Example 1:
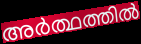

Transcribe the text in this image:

അർത്ഥത്തിൽ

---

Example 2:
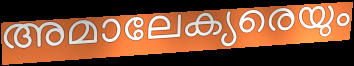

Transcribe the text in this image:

അമാലേക്യരെയും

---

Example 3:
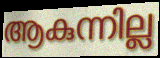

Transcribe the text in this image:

ആകുന്നില്ല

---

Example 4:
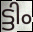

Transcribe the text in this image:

ട്ടിം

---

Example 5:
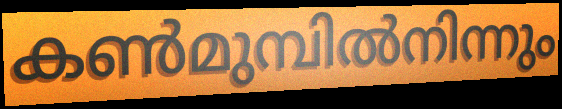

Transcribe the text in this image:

കൺമുമ്പിൽനിന്നും